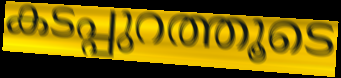
കടപ്പുറത്തൂടെ